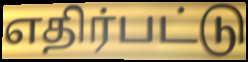
எதிர்பட்டு